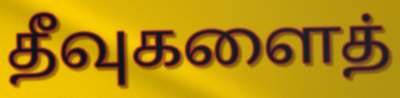
தீவுகளைத்